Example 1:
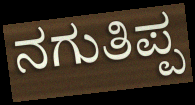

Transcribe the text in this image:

ನಗುತಿಪ್ಪ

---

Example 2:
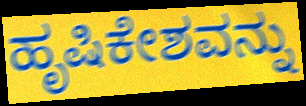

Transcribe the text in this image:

ಹೃಷಿಕೇಶವನ್ನು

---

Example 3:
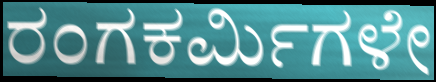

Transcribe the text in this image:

ರಂಗಕರ್ಮಿಗಳೇ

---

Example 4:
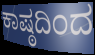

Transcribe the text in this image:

ಕಾಷ್ಠದಿಂದ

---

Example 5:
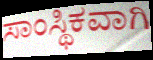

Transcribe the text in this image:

ಸಾಂಸ್ಥಿಕವಾಗಿ